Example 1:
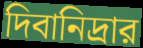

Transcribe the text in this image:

দিবানিদ্রার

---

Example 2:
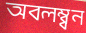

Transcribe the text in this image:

অবলম্ব্বন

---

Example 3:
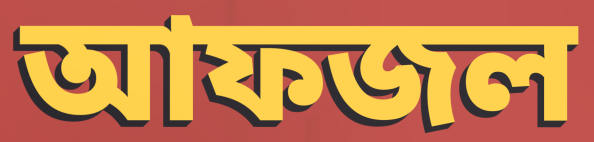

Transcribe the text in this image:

আফজল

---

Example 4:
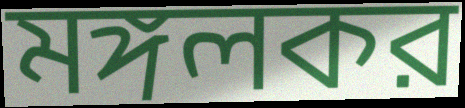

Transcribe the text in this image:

মঙ্গলকর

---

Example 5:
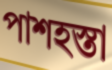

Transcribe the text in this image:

পাশহস্তা